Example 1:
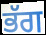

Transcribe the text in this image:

ਭੱਗ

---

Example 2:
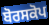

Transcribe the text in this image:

ਬੋਰਸਕੋਪ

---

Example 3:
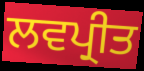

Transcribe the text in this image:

ਲਵਪ੍ਰੀਤ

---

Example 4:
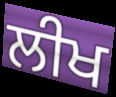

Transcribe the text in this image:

ਲੀਖ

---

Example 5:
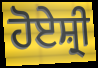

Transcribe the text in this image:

ਹੋਏਸ਼੍ਰੀ